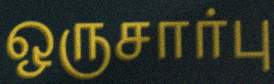
ஒருசார்பு